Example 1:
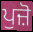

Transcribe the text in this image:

ਪੁਜ਼ੋ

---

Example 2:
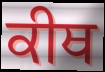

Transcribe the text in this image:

ਕੀਥ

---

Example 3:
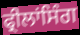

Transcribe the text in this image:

ਫ੍ਰੀਲਾਂਸਿੰਗ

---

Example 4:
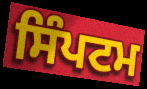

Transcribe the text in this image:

ਸਿੰਪਟਮ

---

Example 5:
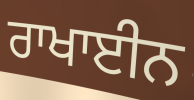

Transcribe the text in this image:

ਰਾਖਾਈਨ